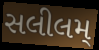
સલીલમ્